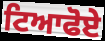
ਟਿਆਫੋਏ